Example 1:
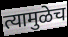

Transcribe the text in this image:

त्यामुळेच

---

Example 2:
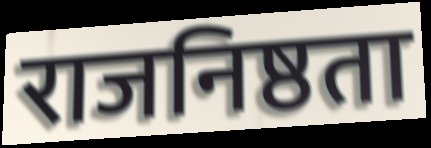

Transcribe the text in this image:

राजनिष्ठता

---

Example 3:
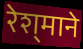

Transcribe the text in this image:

रेश्माने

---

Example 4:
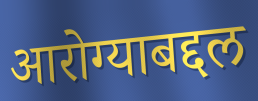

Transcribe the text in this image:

आरोग्याबद्दल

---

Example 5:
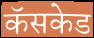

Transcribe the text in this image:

कॅसकेड